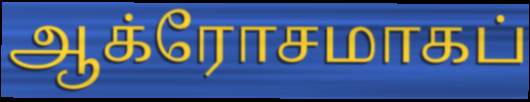
ஆக்ரோசமாகப்